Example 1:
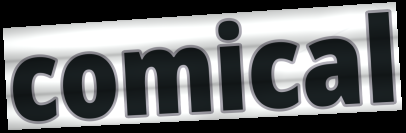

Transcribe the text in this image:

comical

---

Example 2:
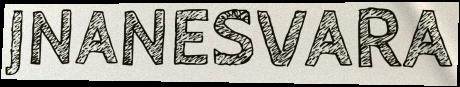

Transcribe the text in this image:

JNANESVARA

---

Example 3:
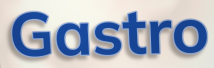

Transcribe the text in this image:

Gastro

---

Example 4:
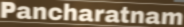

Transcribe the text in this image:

Pancharatnam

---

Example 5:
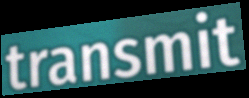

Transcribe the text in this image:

transmit